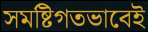
সমষ্টিগতভাবেই